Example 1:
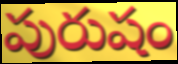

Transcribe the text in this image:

పురుషం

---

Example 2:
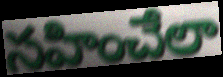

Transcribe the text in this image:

సహించేలా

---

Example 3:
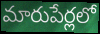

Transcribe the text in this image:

మారుపేర్లలో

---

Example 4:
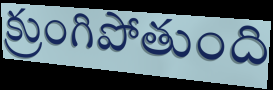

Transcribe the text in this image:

క్రుంగిపోతుంది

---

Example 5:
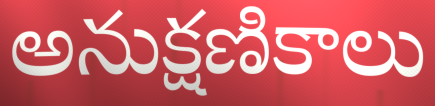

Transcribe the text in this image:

అనుక్షణికాలు